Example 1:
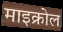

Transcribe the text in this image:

माइक्रोल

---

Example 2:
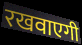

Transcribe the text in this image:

रखवाएगी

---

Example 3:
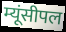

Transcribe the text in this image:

म्यूंसीपल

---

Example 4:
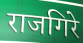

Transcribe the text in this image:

राजगिरे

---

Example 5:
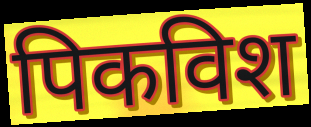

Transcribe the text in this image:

पिकविश